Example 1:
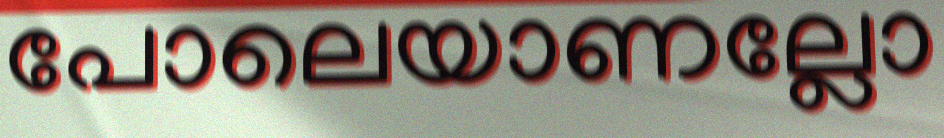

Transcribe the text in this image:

പോലെയാണല്ലോ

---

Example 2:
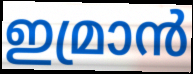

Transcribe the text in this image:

ഇമ്രാൻ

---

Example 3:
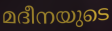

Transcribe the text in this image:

മദീനയുടെ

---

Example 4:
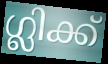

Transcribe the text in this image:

ഗ്ലിക്ക്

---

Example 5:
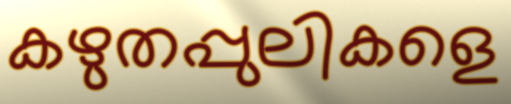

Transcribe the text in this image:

കഴുതപ്പുലികളെ